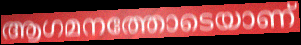
ആഗമനത്തോടെയാണ്